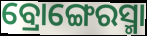
ବ୍ରୋଙ୍ଗେରସ୍ମା